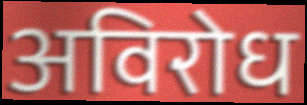
अविरोध